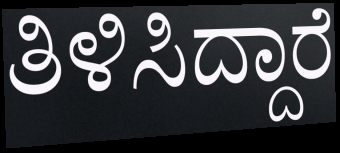
ತಿಳಿಸಿದ್ದಾರೆ